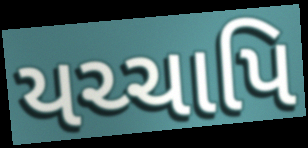
યચ્ચાપિ